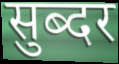
सुब्दर